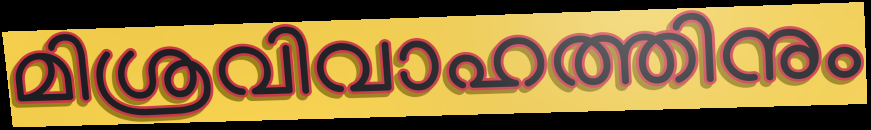
മിശ്രവിവാഹത്തിനും